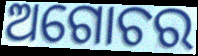
ଅଗୋଚର